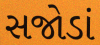
સજોડાં